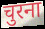
चुरना